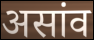
असांव